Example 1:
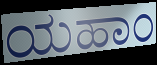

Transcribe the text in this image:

ಯಹಾಂ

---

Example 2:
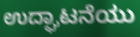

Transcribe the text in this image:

ಉದ್ಘಾಟನೆಯು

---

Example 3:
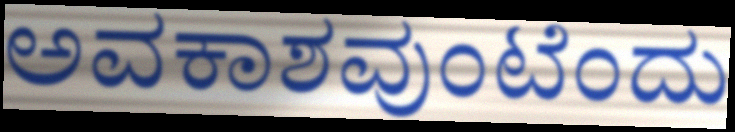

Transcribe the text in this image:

ಅವಕಾಶವುಂಟೆಂದು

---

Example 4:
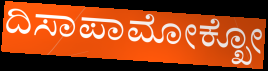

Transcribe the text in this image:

ದಿಸಾಪಾಮೋಕ್ಖೋ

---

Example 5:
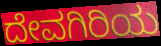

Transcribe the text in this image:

ದೇವಗಿರಿಯ